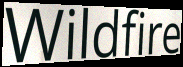
Wildfire